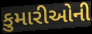
કુમારીઓની